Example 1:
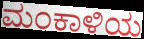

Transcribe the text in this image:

ಮಂಕಾಳಿಯ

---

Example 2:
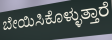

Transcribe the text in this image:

ಬೇಯಿಸಿಕೊಳ್ಳುತ್ತಾರೆ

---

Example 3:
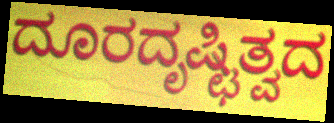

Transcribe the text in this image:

ದೂರದೃಷ್ಟಿತ್ವದ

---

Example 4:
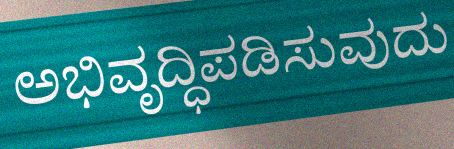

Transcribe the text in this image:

ಅಭಿವೃದ್ಧಿಪಡಿಸುವುದು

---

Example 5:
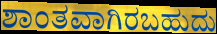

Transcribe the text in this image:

ಶಾಂತವಾಗಿರಬಹುದು